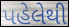
પહેલેથી